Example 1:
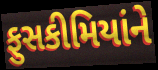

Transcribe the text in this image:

ફુસકીમિયાંને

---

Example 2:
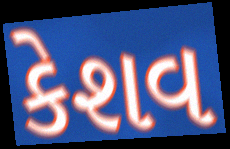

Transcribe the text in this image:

કેશવ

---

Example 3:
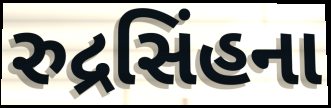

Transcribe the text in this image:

રુદ્રસિંહના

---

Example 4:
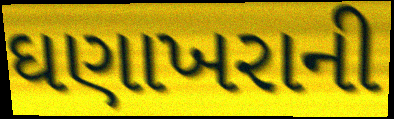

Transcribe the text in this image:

ઘણાખરાની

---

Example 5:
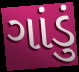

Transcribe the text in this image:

ગાંડું